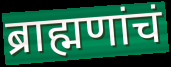
ब्राह्मणांचं